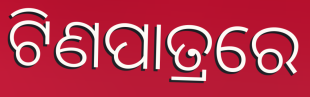
ଟିଣପାତ୍ରରେ